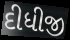
દીધીજી